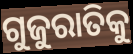
ଗୁଜୁରାତିକୁ